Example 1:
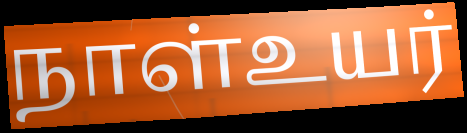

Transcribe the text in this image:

நாள்உயர்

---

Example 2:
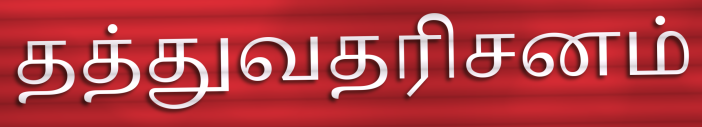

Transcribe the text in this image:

தத்துவதரிசனம்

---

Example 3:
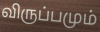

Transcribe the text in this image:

விருப்பமும்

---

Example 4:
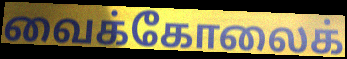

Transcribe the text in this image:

வைக்கோலைக்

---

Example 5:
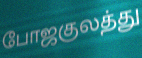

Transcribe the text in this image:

போஜகுலத்து